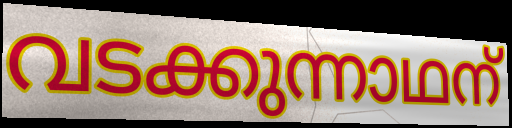
വടക്കുന്നാഥന്